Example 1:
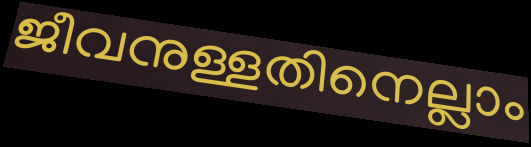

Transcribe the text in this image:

ജീവനുള്ളതിനെല്ലാം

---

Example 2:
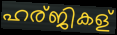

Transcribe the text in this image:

ഹര്ജികള്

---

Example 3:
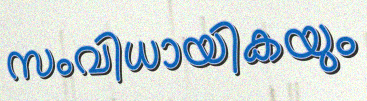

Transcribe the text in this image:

സംവിധായികയും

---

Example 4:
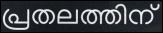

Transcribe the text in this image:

പ്രതലത്തിന്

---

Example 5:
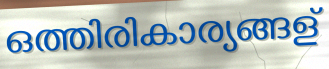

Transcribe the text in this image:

ഒത്തിരികാര്യങ്ങള്